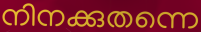
നിനക്കുതന്നെ